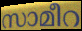
സാമീറ